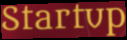
Startup